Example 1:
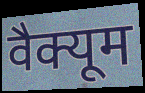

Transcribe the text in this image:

वैक्यूम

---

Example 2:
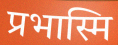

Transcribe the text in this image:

प्रभास्मि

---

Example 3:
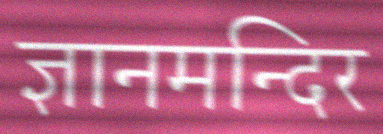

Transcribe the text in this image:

ज्ञानमन्दिर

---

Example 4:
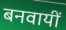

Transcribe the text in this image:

बनवायीं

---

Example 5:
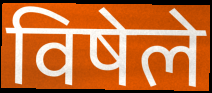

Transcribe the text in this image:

विषेले